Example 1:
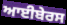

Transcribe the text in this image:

ਆਈਬੇਰਸ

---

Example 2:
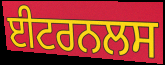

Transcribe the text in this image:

ਈਟਰਨਲਸ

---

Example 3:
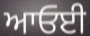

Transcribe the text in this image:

ਆਓਈ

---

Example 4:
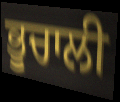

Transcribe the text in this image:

ਭੂਚਾਲੀ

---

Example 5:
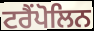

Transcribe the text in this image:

ਟਰੈਂਪੋਲਿਨ